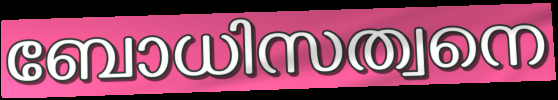
ബോധിസത്വനെ